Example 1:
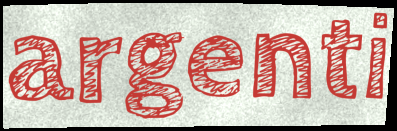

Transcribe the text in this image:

argenti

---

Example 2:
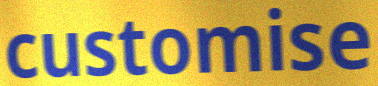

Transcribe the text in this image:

customise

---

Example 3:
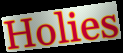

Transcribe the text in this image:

Holies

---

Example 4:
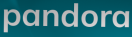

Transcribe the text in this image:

pandora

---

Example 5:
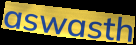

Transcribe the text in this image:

aswasth